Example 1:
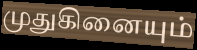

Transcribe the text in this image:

முதுகினையும்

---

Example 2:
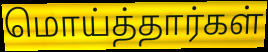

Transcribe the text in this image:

மொய்த்தார்கள்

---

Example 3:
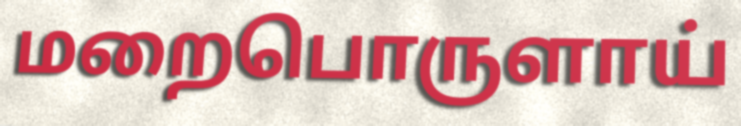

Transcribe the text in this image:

மறைபொருளாய்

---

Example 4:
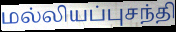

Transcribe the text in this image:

மல்லியப்புசந்தி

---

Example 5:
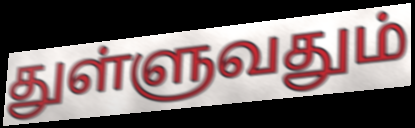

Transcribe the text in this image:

துள்ளுவதும்